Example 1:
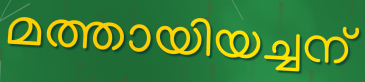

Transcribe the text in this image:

മത്തായിയച്ചന്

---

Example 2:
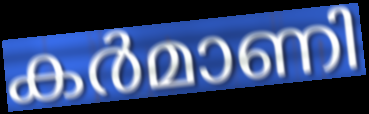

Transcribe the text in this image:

കർമാണി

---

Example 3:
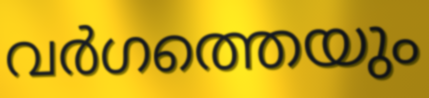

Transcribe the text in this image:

വർഗത്തെയും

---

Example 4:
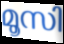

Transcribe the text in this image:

മൂസി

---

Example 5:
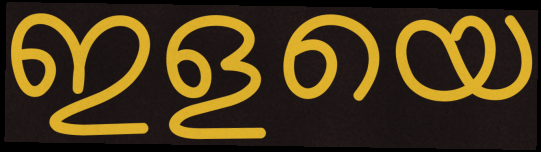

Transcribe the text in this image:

ഇളയെ